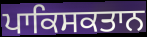
ਪਾਕਿਸਕਤਾਨ